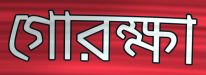
গোরক্ষা